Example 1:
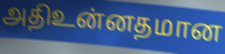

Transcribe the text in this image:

அதிஉன்னதமான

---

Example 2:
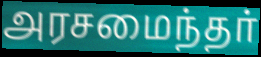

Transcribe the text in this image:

அரசமைந்தர்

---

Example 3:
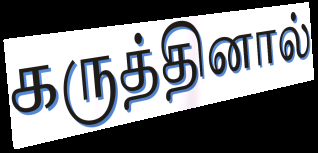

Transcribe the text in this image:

கருத்தினால்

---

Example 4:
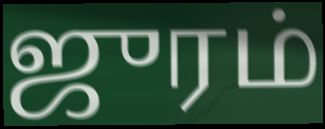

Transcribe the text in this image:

ஜுரம்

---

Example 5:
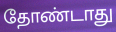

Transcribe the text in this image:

தோண்டாது